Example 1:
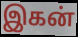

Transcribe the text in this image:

இகன்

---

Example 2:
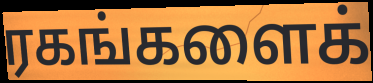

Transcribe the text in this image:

ரகங்களைக்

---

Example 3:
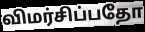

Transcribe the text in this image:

விமர்சிப்பதோ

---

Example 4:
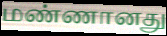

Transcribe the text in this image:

மண்ணானது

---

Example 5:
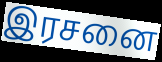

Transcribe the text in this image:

இரசனை